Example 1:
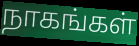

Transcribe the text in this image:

நாகங்கள்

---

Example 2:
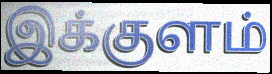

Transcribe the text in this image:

இக்குளம்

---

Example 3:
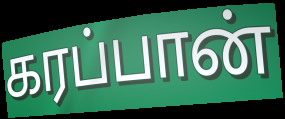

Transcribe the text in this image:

கரப்பான்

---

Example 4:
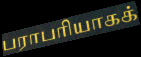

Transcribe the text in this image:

பராபரியாகக்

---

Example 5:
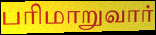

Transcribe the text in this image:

பரிமாறுவார்